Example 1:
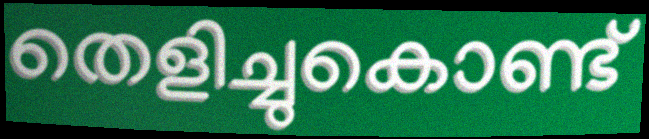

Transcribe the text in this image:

തെളിച്ചുകൊണ്ട്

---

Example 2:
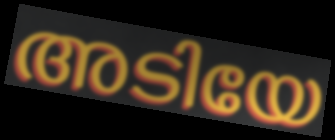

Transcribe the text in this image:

അടിയേ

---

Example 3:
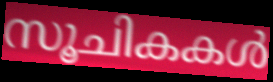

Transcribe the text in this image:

സൂചികകൾ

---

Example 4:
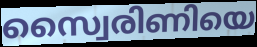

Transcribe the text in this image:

സ്വൈരിണിയെ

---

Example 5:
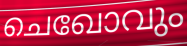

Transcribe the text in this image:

ചെഖോവും